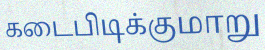
கடைபிடிக்குமாறு